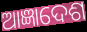
ଆଜ୍ଞାଦେଶ